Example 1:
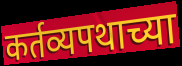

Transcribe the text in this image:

कर्तव्यपथाच्या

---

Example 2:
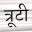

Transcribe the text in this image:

त्रूटी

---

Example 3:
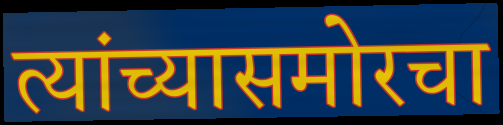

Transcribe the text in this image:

त्यांच्यासमोरचा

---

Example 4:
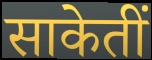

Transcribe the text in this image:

साकेतीं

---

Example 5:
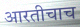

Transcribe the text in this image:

आरतीचाच